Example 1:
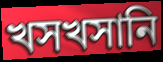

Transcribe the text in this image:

খসখসানি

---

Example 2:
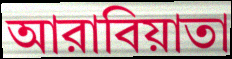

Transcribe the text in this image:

আরাবিয়াতা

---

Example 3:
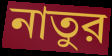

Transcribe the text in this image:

নাতুর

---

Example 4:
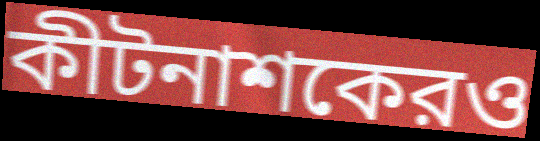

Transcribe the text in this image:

কীটনাশকেরও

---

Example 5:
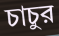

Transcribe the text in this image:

চাচুর